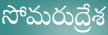
సోమరుద్రేశ